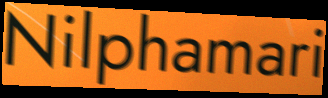
Nilphamari